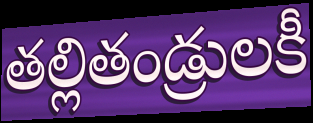
తల్లితండ్రులకీ